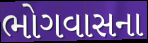
ભોગવાસના